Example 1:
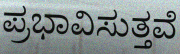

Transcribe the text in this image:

ಪ್ರಭಾವಿಸುತ್ತವೆ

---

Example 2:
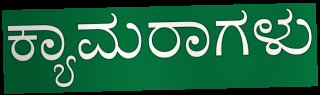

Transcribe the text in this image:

ಕ್ಯಾಮರಾಗಳು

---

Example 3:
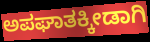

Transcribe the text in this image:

ಅಪಘಾತಕ್ಕೀಡಾಗಿ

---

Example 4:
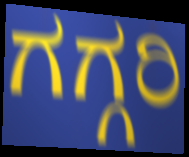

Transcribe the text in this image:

ಗಗ್ಗರಿ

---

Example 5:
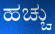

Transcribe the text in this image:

ಹಚ್ಚು